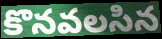
కొనవలసిన